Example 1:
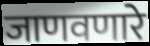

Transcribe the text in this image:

जाणवणारे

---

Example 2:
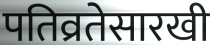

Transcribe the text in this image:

पतिव्रतेसारखी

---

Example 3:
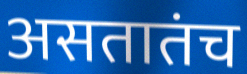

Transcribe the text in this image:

असतातंच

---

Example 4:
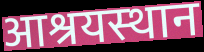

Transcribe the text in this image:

आश्रयस्थान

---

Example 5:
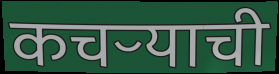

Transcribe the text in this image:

कचऱ्याची